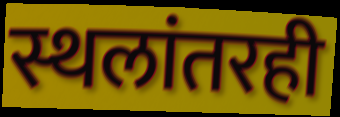
स्थलांतरही